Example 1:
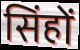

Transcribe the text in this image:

सिंहों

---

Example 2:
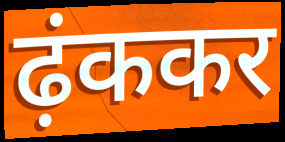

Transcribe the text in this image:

ढ़ंककर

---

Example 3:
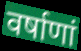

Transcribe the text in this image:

वर्षाणां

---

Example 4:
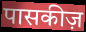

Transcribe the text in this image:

पासकीज़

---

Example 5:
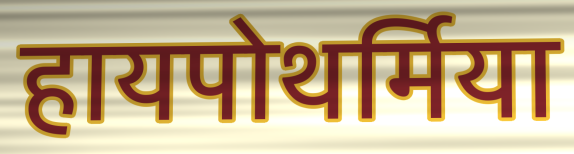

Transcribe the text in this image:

हायपोथर्मिया